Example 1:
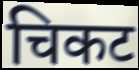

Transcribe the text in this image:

चिकट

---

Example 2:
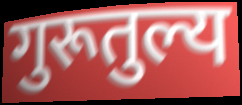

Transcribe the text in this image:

गुरूतुल्य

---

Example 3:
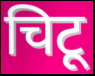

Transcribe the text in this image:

चिटू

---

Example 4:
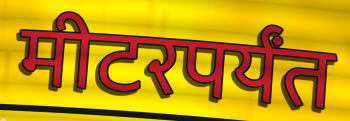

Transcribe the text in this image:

मीटरपर्यंत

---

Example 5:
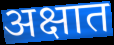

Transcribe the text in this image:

अक्षात